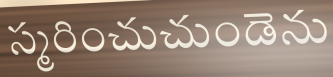
స్మరించుచుండెను